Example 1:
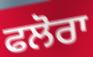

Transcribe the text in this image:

ਫਲੋਰਾ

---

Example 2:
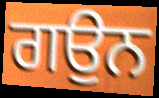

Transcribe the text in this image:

ਗਉਨ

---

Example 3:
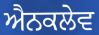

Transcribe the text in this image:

ਐਨਕਲੇਵ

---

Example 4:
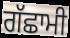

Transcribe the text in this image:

ਗੱਛਾਮੀ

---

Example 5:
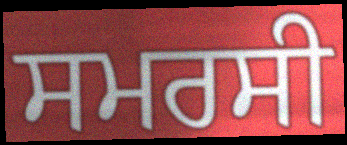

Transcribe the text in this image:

ਸਮਰਸੀ